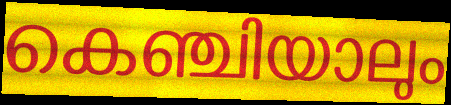
കെഞ്ചിയാലും